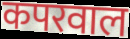
कपरवाल